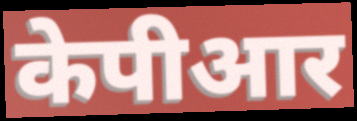
केपीआर